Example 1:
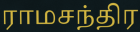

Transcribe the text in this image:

ராமசந்திர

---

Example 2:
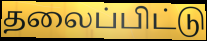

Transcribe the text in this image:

தலைப்பிட்டு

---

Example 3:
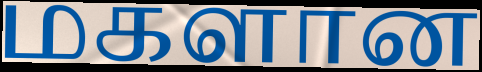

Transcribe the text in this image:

மகளான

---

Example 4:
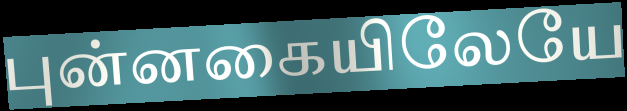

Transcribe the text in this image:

புன்னகையிலேயே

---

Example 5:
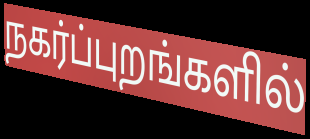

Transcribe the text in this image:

நகர்ப்புறங்களில்